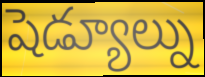
షెడ్యూల్ను